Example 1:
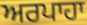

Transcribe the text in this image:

ਅਰਪਾਹਾ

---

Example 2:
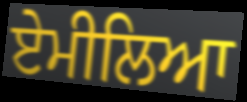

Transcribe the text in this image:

ਏਮੀਲਿਆ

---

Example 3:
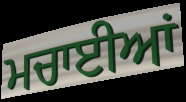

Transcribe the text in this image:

ਮਚਾਈਆਂ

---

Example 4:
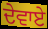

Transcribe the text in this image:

ਦੇਵਾਏ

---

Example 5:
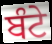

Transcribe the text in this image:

ਬੰਟੇ